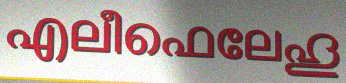
എലീഫെലേഹൂ